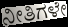
ನೀತಿಗಳೇ